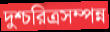
দুশ্চরিত্রসম্পন্ন